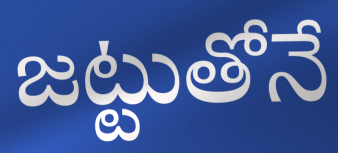
జట్టుతోనే